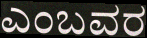
ಎಂಬವರ